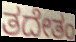
ತದೇತಂ